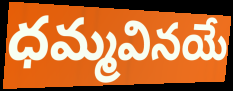
ధమ్మవినయే